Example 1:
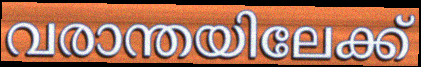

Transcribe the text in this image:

വരാന്തയിലേക്ക്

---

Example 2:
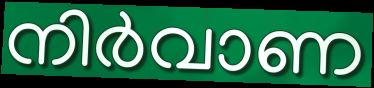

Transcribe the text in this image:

നിർവാണ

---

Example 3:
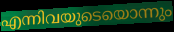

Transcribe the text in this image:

എന്നിവയുടെയൊന്നും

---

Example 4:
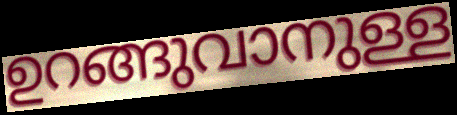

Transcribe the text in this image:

ഉറങ്ങുവാനുള്ള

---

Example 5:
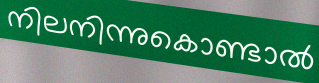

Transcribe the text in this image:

നിലനിന്നുകൊണ്ടാൽ